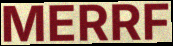
MERRF